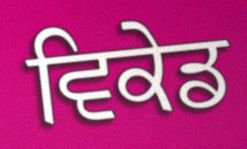
ਵਿਕੇਡ